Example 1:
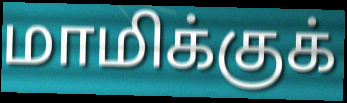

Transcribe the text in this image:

மாமிக்குக்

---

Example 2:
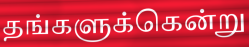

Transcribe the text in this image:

தங்களுக்கென்று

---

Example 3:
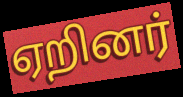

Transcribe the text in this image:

ஏறினர்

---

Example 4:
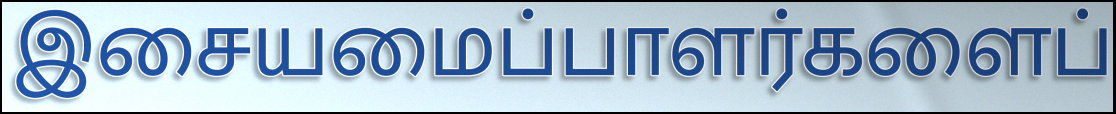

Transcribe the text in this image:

இசையமைப்பாளர்களைப்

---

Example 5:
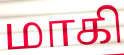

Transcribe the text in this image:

மாகி